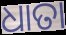
ଧାତା